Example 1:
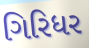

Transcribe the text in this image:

ગિરિધર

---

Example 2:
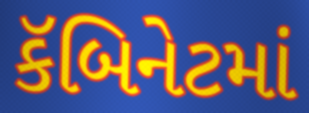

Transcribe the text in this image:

કૅબિનેટમાં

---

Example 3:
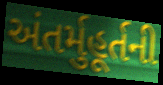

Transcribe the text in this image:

અંતર્મુહૂર્તની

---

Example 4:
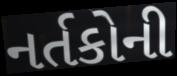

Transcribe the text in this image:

નર્તકોની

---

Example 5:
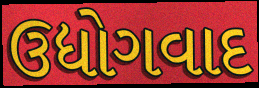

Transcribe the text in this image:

ઉદ્યોગવાદ